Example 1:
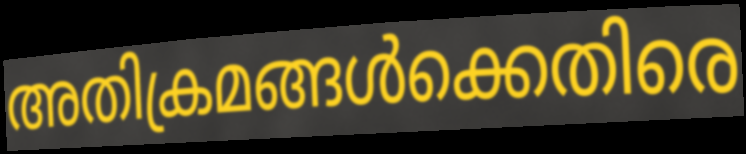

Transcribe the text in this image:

അതിക്രമങ്ങൾക്കെതിരെ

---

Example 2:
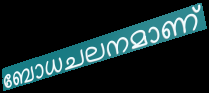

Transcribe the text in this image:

ബോധചലനമാണ്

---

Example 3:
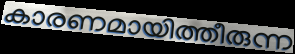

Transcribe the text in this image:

കാരണമായിത്തീരുന്ന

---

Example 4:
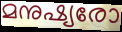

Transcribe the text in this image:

മനുഷ്യരോ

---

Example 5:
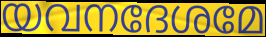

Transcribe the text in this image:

യവനദേശമേ